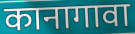
कानागावा